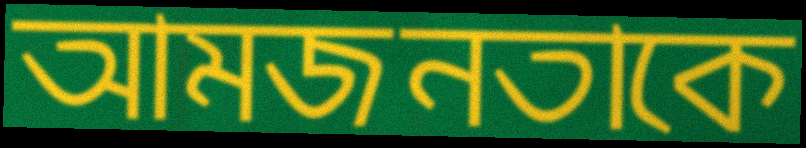
আমজনতাকে